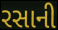
રસાની